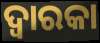
ଦ୍ୱାରକା